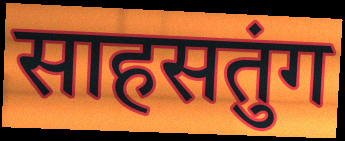
साहसतुंग